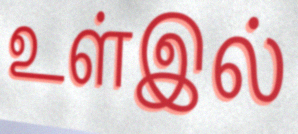
உள்இல்